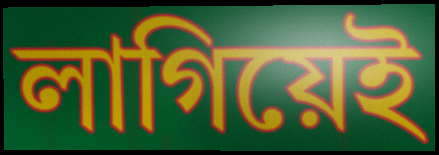
লাগিয়েই